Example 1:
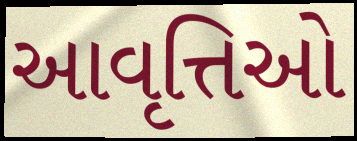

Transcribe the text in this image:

આવૃત્તિઓ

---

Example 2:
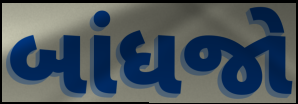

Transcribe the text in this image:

બાંધજો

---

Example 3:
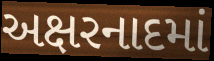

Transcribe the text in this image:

અક્ષરનાદમાં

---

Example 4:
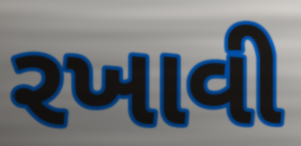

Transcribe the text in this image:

રખાવી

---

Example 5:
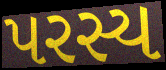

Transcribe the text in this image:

પરસ્ય